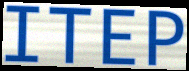
ITEP